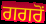
ਗਗਰੋਂ